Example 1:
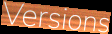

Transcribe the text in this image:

Versions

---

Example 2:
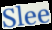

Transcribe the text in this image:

Slee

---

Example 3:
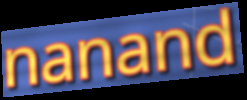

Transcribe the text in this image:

nanand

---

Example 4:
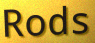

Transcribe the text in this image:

Rods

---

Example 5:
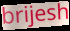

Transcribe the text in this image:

brijesh